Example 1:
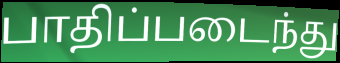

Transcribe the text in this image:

பாதிப்படைந்து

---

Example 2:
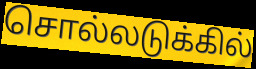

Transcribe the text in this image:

சொல்லடுக்கில்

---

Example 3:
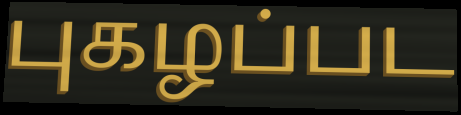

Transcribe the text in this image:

புகழப்பட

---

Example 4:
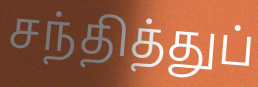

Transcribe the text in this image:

சந்தித்துப்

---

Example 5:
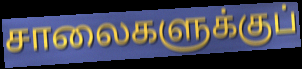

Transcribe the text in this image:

சாலைகளுக்குப்